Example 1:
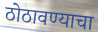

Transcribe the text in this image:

ठोठावण्याचा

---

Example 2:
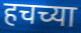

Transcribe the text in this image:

हचच्या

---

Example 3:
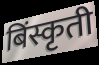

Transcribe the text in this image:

बिंस्कृती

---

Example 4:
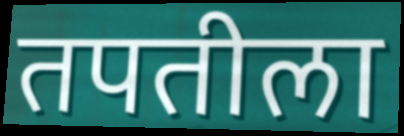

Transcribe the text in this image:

तपतीला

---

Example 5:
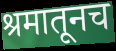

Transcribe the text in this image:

श्रमातूनच